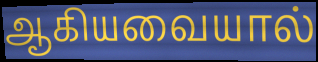
ஆகியவையால்